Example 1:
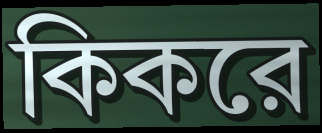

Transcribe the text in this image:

কিকরে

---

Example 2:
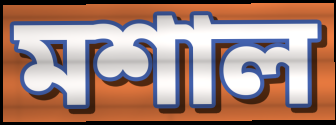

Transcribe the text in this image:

মশাল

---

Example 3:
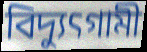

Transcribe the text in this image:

বিদ্যুৎগামী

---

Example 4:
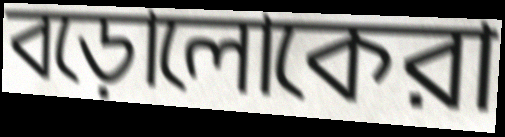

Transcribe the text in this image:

বড়োলোকেরা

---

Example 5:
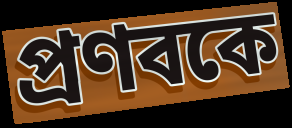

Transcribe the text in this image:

প্রণবকে